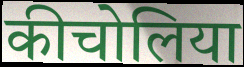
कीचोलिया